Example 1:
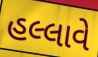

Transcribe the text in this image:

હલ્લાવે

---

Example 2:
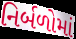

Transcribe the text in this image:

નિર્બળોમાં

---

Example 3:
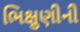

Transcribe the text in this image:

ભિક્ષુણીની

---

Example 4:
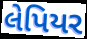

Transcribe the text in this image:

લેપિયર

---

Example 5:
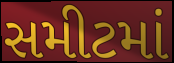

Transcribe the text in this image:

સમીટમાં